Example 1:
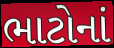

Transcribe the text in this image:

ભાટોનાં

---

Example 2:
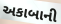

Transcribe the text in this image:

અકાબાની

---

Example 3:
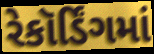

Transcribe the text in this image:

રેકૉર્ડિંગમાં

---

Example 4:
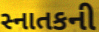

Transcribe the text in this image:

સ્નાતકની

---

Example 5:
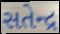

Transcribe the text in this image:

સતેન્દ્ર